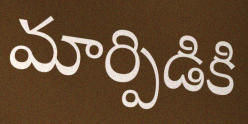
మార్పిడికి